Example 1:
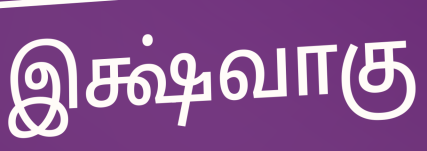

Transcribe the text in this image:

இக்ஷ்வாகு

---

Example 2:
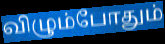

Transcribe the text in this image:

விழும்போதும்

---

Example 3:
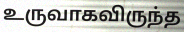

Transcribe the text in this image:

உருவாகவிருந்த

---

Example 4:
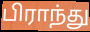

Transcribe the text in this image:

பிராந்து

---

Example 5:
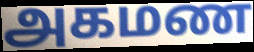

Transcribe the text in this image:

அகமண